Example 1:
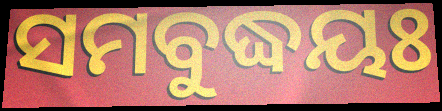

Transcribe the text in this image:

ସମବୁଦ୍ଧୟଃ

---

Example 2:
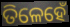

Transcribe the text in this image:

ତିଳେହେଁ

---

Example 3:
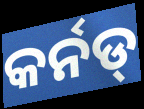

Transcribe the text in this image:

କର୍ନଡ୍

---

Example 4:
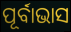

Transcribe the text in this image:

ପୂର୍ବାଭାସ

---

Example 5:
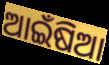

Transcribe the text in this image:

ଆଇଁଷିଆ